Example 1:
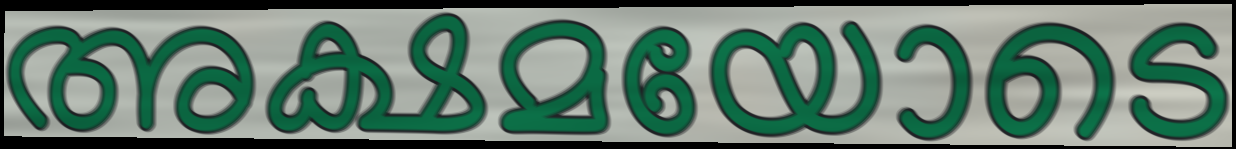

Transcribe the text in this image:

അക്ഷമയോടെ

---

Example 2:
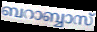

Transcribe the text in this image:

ബറാബ്ബാസ്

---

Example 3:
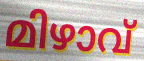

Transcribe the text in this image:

മിഴാവ്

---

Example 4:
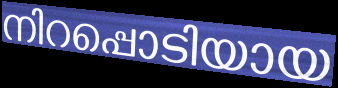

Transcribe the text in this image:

നിറപ്പൊടിയായ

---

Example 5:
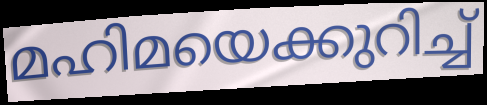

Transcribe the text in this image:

മഹിമയെക്കുറിച്ച്